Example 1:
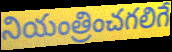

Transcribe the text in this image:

నియంత్రించగలిగే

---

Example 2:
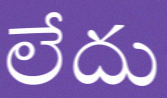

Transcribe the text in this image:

లేదు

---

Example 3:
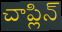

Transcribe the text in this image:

చాప్లిన్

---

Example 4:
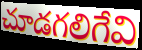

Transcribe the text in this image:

చూడగలిగేవి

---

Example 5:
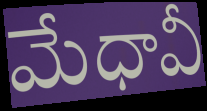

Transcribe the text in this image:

మేధావీ